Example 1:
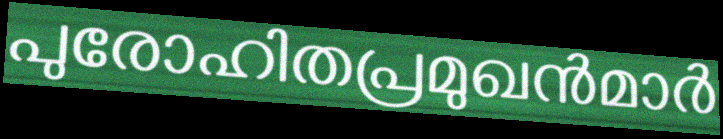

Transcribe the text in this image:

പുരോഹിതപ്രമുഖൻമാർ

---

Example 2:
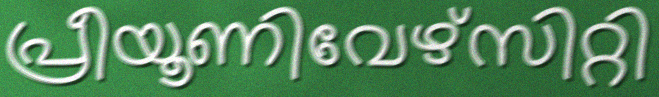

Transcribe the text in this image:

പ്രീയൂണിവേഴ്സിറ്റി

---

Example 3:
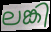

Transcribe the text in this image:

ലങ്കി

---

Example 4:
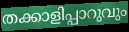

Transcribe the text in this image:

തക്കാളിപ്പാറുവും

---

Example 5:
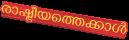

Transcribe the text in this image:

രാഷ്ട്രീയത്തെക്കാൾ